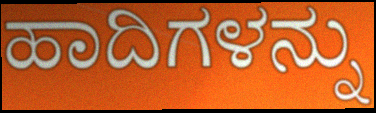
ಹಾದಿಗಳನ್ನು